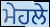
ਮੇਹਲੇ